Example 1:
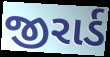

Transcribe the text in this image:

જીરાર્ડ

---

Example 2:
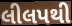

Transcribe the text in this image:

લીલપથી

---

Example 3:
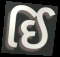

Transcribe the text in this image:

ઈિ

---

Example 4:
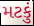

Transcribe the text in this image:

મટકું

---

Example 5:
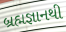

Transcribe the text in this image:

બ્રહ્મજ્ઞાનથી